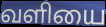
வளியை